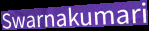
Swarnakumari